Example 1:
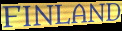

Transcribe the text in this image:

FINLAND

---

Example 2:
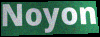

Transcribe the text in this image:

Noyon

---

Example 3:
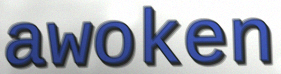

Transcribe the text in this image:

awoken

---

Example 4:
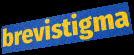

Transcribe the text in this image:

brevistigma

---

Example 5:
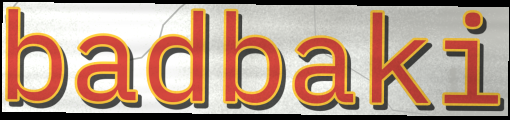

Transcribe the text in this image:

badbaki